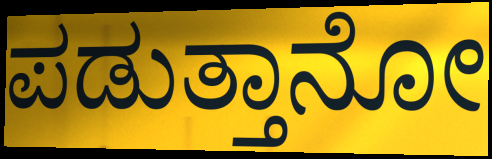
ಪಡುತ್ತಾನೋ